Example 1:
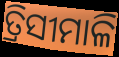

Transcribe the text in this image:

ତ୍ରିସୀମାଳି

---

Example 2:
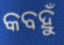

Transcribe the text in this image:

କବହୁଁ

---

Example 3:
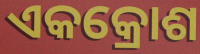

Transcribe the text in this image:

ଏକକ୍ରୋଶ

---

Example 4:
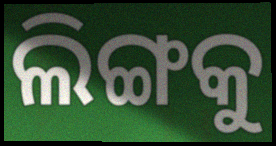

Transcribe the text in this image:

ଲିଙ୍ଗକୁ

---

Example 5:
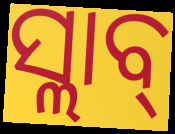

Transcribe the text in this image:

ସ୍ଲାବ୍